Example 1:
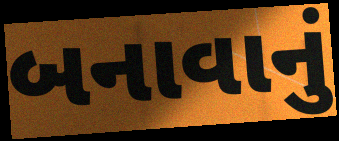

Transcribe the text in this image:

બનાવાનું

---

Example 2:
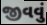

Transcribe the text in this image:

જીવવું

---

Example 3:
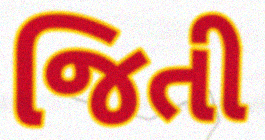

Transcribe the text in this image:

જિતી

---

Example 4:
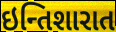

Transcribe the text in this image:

ઇન્તિશારાત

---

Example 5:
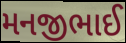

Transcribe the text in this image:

મનજીભાઈ